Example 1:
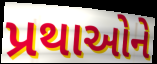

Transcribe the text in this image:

પ્રથાઓને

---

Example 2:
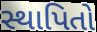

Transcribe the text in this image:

સ્થાપિતો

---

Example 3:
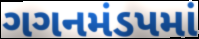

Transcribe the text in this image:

ગગનમંડપમાં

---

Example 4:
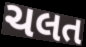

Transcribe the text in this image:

ચલત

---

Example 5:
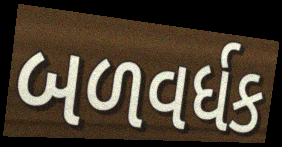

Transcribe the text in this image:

બળવર્ધક